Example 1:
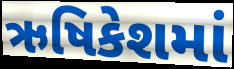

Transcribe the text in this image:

ઋષિકેશમાં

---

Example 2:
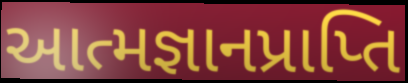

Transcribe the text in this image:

આત્મજ્ઞાનપ્રાપ્તિ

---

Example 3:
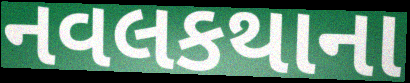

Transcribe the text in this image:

નવલકથાના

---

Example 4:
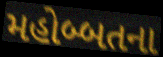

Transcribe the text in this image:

મહોબ્બતના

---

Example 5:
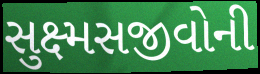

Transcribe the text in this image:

સુક્ષ્મસજીવોની